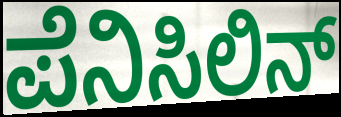
ಪೆನಿಸಿಲಿನ್